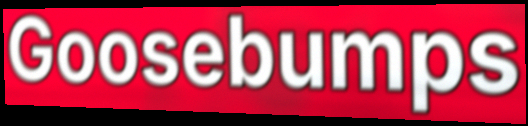
Goosebumps